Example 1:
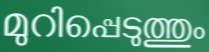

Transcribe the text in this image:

മുറിപ്പെടുത്തും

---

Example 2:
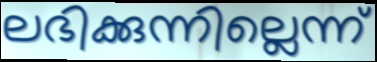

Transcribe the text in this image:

ലഭിക്കുന്നില്ലെന്ന്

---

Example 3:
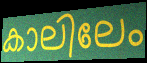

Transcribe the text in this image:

കാലിലേം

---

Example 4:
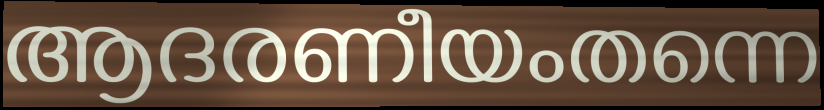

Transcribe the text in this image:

ആദരണീയംതന്നെ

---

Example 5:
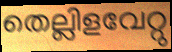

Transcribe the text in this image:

തെല്ലിളവേറ്റു